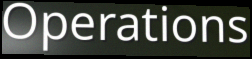
Operations